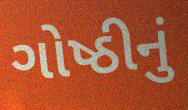
ગોષ્ઠીનું